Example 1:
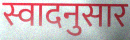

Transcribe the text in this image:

स्वादनुसार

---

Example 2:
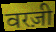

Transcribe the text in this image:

वरज़ी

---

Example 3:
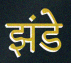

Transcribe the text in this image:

झंडे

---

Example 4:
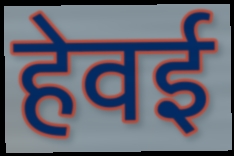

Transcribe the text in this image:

हेवई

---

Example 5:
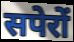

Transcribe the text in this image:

सपेरों